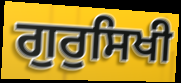
ਗੁਰੁਸਿਖੀ